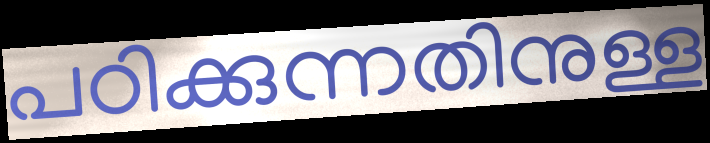
പഠിക്കുന്നതിനുള്ള